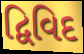
દ્વિવિદ